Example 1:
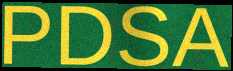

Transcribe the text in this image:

PDSA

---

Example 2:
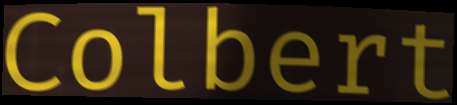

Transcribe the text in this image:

Colbert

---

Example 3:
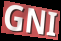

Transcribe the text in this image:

GNI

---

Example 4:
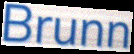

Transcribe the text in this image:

Brunn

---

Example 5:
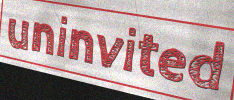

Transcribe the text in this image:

uninvited